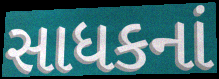
સાધકનાં